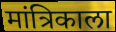
मांत्रिकाला